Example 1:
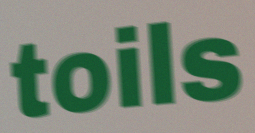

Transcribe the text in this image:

toils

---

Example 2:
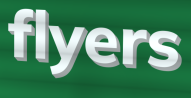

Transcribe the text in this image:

flyers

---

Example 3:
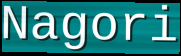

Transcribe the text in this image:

Nagori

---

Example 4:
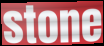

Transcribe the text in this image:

stone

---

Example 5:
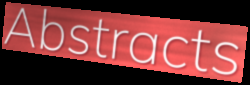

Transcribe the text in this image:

Abstracts